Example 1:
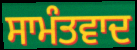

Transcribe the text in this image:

ਸਾਮੰਤਵਾਦ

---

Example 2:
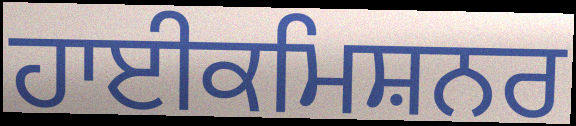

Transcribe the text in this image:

ਹਾਈਕਮਿਸ਼ਨਰ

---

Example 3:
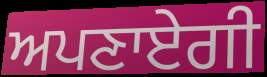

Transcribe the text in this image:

ਅਪਣਾਏਗੀ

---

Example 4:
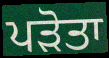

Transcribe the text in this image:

ਪੜੋਤਾ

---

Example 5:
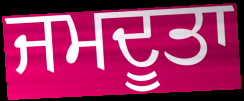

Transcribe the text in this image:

ਜਮਦੂਤਾ